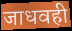
जाधवही